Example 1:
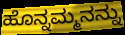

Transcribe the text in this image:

ಹೊನ್ನಮ್ಮನನ್ನು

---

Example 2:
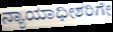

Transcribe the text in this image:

ನ್ಯಾಯಾಧೀಶರಿಗೇ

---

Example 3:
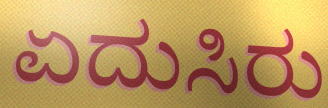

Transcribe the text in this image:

ಏದುಸಿರು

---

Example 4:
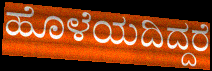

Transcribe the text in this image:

ಹೊಳೆಯದಿದ್ದರೆ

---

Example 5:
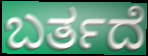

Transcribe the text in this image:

ಬರ್ತದೆ